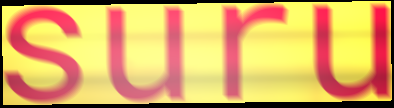
suru